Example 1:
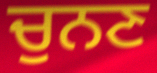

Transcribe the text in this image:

ਚੁਨਣ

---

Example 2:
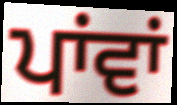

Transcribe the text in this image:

ਪਾਂਵਾਂ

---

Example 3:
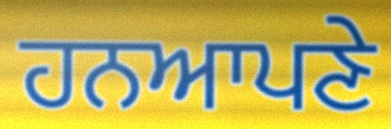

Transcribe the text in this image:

ਹਨਆਪਣੇ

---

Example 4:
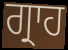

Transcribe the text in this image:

ਗ੍ਰਾਹ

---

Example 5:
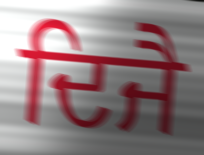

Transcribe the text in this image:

ਦਿਜੈ